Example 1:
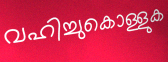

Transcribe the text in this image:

വഹിച്ചുകൊള്ളുക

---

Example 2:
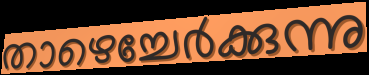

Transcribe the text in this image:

താഴെച്ചേർക്കുന്നു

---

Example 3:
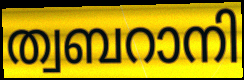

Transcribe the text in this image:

ത്വബറാനി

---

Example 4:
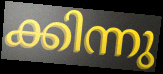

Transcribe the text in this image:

ക്കിന്നു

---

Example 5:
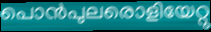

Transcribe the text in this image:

പൊൻപുലരൊളിയേറ്റു